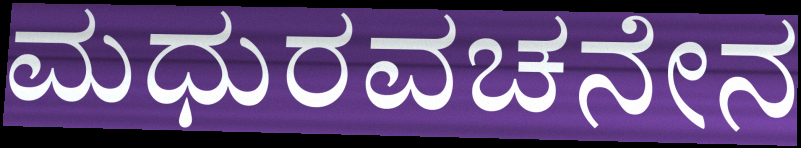
ಮಧುರವಚನೇನ